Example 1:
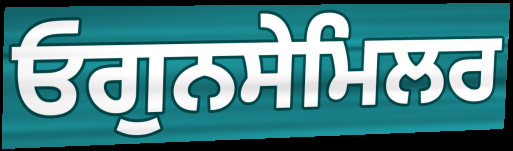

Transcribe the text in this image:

ਓਗੁਨਸੇਮਿਲਰ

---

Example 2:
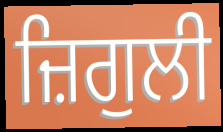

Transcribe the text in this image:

ਜ਼ਿਗੁਲੀ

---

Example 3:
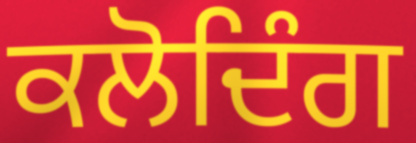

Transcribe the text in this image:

ਕਲੋਦਿੰਗ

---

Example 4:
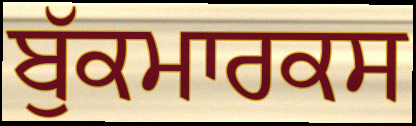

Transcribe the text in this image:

ਬੁੱਕਮਾਰਕਸ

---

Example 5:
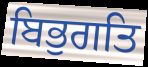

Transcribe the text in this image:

ਬਿਭੁਗਤਿ